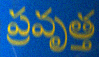
ప్రవృత్త